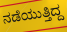
ನಡೆಯುತ್ತಿದ್ದ